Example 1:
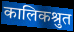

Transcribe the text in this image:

कालिकश्रुत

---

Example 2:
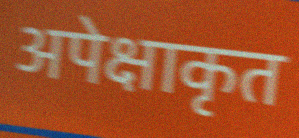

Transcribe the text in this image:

अपेक्षाकृत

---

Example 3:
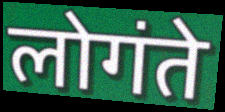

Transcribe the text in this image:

लोगंते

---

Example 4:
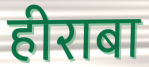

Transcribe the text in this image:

हीराबा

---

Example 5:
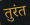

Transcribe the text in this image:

तुरंत